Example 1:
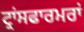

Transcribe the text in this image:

ਟ੍ਰਾਂਸਫਾਰਮਰਾਂ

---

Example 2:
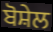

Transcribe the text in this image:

ਬੋਸ਼ੇਲ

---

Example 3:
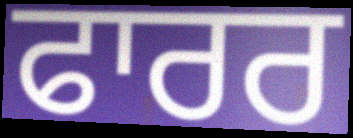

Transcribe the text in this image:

ਫਾਰਰ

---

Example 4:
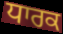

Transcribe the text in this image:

ਧਾਰਕ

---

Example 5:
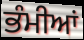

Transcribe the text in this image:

ਭੰਮੀਆਂ